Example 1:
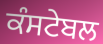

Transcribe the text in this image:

ਕੰਸਟੇਬਲ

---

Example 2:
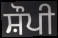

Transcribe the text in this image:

ਸ਼ੌਪੀ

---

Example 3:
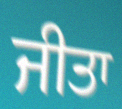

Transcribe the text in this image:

ਜੀਤਾ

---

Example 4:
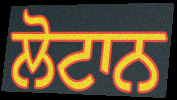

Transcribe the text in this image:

ਲੋਟਾਨ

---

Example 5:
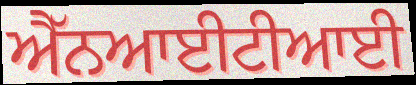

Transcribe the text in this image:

ਐੱਨਆਈਟੀਆਈ